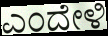
ಎಂದೇಳಿ